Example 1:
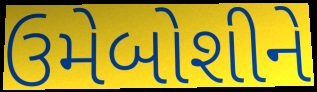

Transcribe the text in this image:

ઉમેબોશીને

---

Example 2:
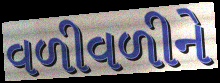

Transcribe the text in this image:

વળીવળીને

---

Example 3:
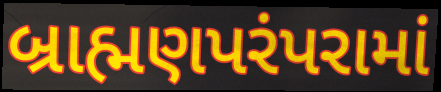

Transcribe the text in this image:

બ્રાહ્મણપરંપરામાં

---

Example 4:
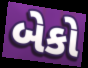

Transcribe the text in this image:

બેકો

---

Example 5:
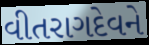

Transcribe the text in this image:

વીતરાગદેવને